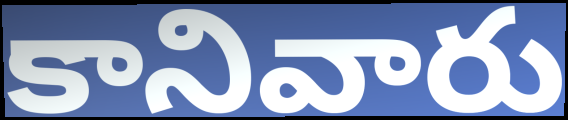
కానివారు